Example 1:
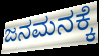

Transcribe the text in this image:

ಜನಮನಕ್ಕೆ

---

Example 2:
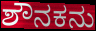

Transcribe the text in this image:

ಶೌನಕನು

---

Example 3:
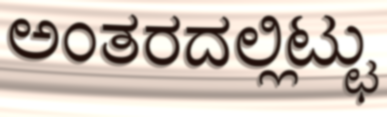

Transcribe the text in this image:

ಅಂತರದಲ್ಲಿಟ್ಟು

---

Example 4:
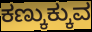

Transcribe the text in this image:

ಕಣ್ಕುಕ್ಕುವ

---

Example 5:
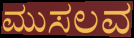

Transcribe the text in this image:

ಮುಸಲವ